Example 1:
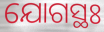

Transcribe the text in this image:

ଯୋଗସ୍ଥଃ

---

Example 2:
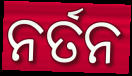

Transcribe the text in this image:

ନର୍ତନ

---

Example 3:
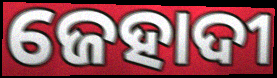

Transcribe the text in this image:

ଜେହାଦୀ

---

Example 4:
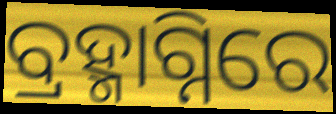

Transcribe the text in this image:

ବ୍ରହ୍ମାଗ୍ନିରେ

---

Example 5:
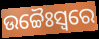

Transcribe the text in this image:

ଉଚ୍ଚୈଃସ୍ୱରେ